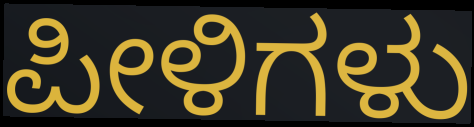
ಪೀಳಿಗಳು